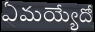
ఏమయ్యేదో